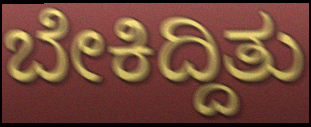
ಬೇಕಿದ್ದಿತು